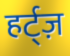
हर्ट्ज़